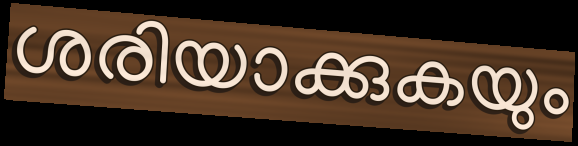
ശരിയാക്കുകയും